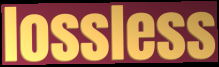
lossless